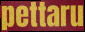
pettaru